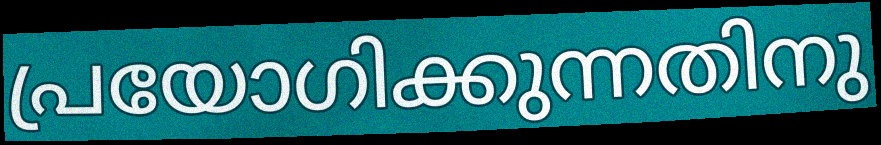
പ്രയോഗിക്കുന്നതിനു